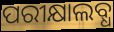
ପରୀକ୍ଷାଲବ୍ଧ